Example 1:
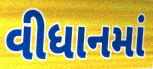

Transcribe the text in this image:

વીધાનમાં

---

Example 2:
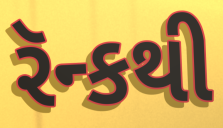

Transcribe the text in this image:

રૅન્કથી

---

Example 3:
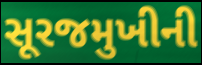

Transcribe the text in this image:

સૂરજમુખીની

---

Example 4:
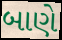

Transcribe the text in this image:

બાણે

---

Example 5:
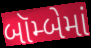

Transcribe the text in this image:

બૉમ્બેમાં